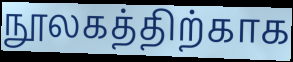
நூலகத்திற்காக